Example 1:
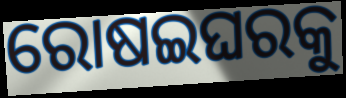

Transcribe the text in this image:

ରୋଷଇଘରକୁ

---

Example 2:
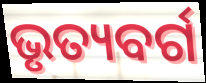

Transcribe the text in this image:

ଭୃତ୍ୟବର୍ଗ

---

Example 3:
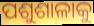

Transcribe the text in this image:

ପଶୁଶାଳାକୁ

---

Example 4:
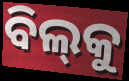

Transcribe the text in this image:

ବିଲ୍‌କୁ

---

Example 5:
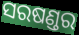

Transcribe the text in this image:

ସରଷଣ୍ଡର